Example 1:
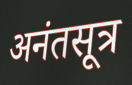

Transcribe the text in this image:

अनंतसूत्र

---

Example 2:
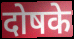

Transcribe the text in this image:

दोषके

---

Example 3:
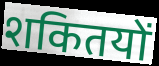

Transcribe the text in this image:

शकितयों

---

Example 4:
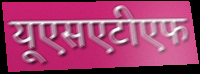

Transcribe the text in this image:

यूएसएटीएफ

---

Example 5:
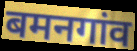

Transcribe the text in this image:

बमनगांव